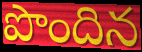
పొందిన